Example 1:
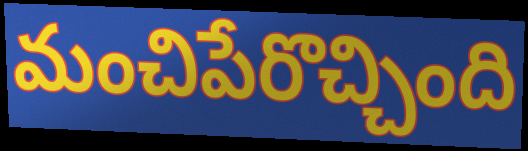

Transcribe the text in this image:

మంచిపేరొచ్చింది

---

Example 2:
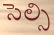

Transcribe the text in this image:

సెల్సి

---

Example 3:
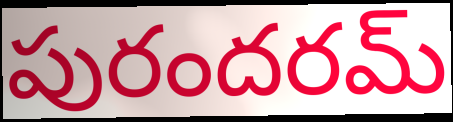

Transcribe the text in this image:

పురందరమ్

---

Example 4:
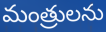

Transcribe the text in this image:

మంత్రులను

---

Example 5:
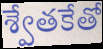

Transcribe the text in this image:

శ్వేతకేతో